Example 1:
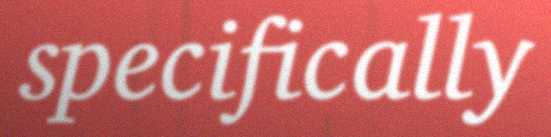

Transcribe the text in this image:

specifically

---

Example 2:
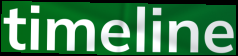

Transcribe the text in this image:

timeline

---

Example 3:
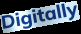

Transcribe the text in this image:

Digitally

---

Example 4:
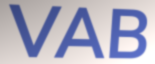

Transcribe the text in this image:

VAB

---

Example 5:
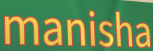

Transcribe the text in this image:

manisha